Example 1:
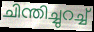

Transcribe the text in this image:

ചിന്തിച്ചുറച്ച്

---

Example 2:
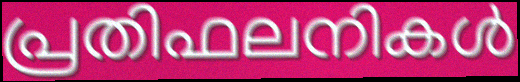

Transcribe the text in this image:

പ്രതിഫലനികൾ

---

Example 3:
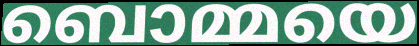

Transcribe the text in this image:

ബൊമ്മയെ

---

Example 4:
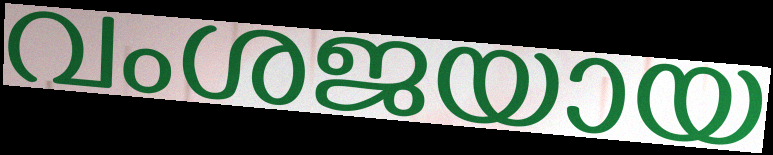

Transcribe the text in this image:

വംശജയായ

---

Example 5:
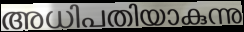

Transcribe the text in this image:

അധിപതിയാകുന്നു